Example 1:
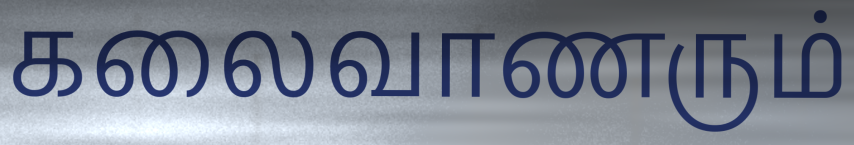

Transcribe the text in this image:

கலைவாணரும்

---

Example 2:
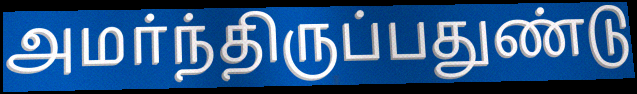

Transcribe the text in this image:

அமர்ந்திருப்பதுண்டு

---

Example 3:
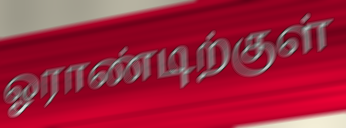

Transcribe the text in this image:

ஓராண்டிற்குள்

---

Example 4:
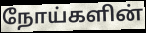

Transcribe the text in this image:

நோய்களின்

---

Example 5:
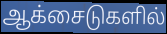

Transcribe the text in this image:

ஆக்சைடுகளில்